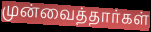
முன்வைத்தார்கள்